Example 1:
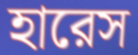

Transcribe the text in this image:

হারেস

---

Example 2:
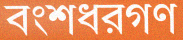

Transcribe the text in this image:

বংশধরগণ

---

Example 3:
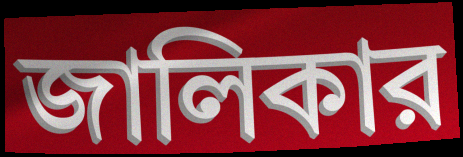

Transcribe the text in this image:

জালিকার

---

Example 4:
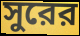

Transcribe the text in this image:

সুরের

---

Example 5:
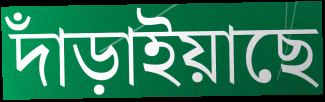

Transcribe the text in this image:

দাঁড়াইয়াছে